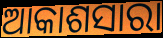
ଆକାଶସାରା